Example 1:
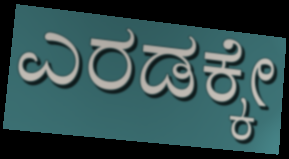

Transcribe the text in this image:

ಎರಡಕ್ಕೇ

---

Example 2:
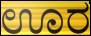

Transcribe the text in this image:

ಊರ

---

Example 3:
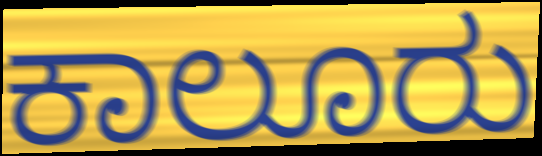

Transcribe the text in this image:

ಕಾಲೂರು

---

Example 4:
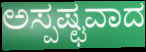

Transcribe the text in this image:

ಅಸ್ಪಷ್ಟವಾದ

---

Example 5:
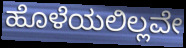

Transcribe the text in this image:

ಹೊಳೆಯಲಿಲ್ಲವೇ